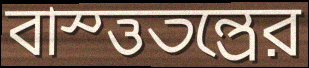
বাস্ত্ততন্ত্রের